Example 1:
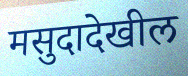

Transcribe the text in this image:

मसुदादेखील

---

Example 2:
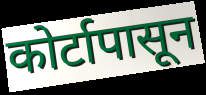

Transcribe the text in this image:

कोर्टापासून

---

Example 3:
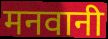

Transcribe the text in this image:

मनवानी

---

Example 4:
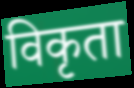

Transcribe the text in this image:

विकृता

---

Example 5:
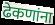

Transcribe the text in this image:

ढेकणांना